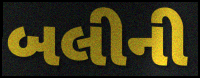
બલીની